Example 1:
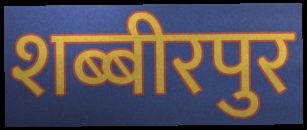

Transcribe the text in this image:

शब्‍बीरपुर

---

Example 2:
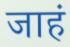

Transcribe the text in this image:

जाहं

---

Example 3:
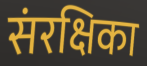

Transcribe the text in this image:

संरक्षिका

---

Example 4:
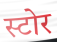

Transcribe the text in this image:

स्‍टोर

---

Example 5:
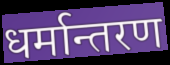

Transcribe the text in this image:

धर्मान्तरण